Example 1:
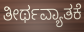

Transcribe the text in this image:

ತೀರ್ಥವ್ಯಾತಕೆ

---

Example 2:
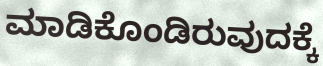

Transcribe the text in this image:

ಮಾಡಿಕೊಂಡಿರುವುದಕ್ಕೆ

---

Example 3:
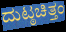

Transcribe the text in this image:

ದುಟ್ಠಚಿತ್ತಂ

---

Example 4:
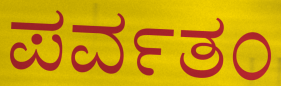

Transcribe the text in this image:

ಪರ್ವತಂ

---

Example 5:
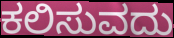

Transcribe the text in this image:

ಕಲಿಸುವದು